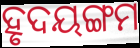
ହୃଦୟଙ୍ଗମ